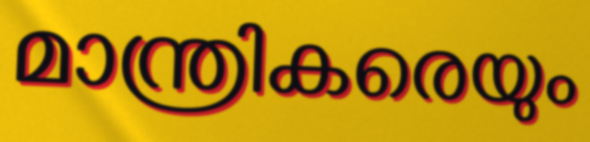
മാന്ത്രികരെയും